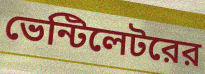
ভেন্টিলেটরের